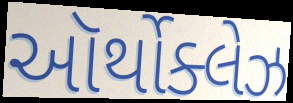
ઑર્થોક્લેઝ